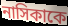
নাসিকাকে